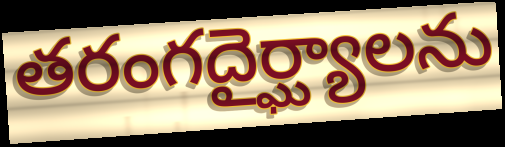
తరంగదైర్ఘ్యాలను